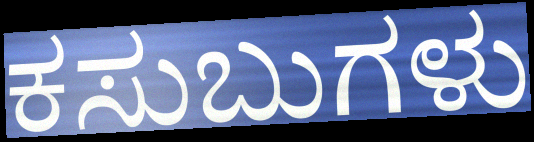
ಕಸುಬುಗಳು